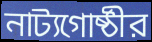
নাট্যগোষ্ঠীর